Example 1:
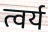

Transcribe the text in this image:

त्वर्य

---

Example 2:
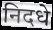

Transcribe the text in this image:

निदधे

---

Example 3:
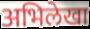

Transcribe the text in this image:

अभिलेखा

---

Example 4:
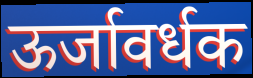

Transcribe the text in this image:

ऊर्जावर्धक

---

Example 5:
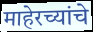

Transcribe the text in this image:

माहेरच्यांचे